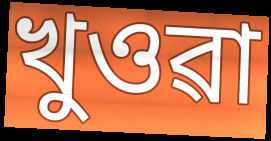
খুওৱা